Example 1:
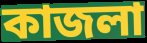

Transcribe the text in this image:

কাজলা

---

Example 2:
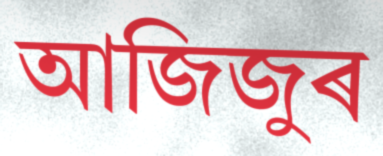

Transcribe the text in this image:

আজিজুৰ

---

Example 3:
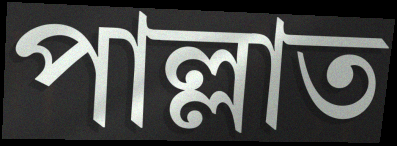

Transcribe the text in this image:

পাল্লাত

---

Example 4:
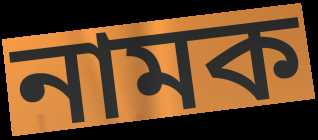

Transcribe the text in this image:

নামক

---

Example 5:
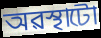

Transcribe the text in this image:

অৱস্থাটো